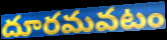
దూరమవటం